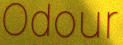
Odour